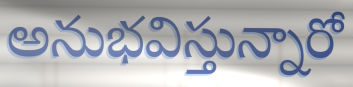
అనుభవిస్తున్నారో